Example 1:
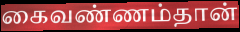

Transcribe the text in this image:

கைவண்ணம்தான்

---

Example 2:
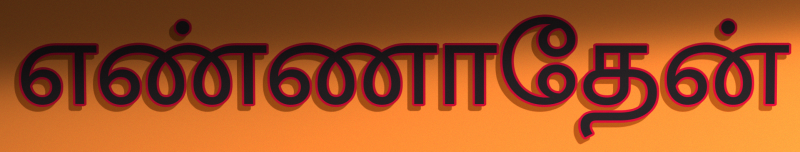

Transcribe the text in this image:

எண்ணாதேன்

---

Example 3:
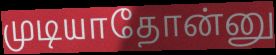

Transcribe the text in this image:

முடியாதோன்னு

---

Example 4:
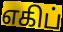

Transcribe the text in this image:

எகிப்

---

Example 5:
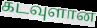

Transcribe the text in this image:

கடவுளான